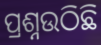
ପ୍ରଶ୍ନଉଠିଛି